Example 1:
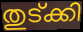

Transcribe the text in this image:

തുട്ക്കി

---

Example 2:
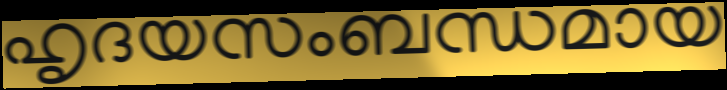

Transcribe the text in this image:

ഹൃദയസംബന്ധമായ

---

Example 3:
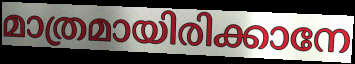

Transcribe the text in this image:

മാത്രമായിരിക്കാനേ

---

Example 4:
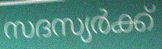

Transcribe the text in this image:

സദസ്യർക്ക്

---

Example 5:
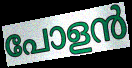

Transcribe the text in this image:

പോളൻ